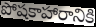
పోషకాహారానికి